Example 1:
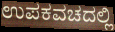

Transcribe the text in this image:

ಉಪಕವಚದಲ್ಲಿ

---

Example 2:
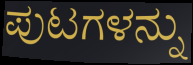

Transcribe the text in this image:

ಪುಟಗಳನ್ನು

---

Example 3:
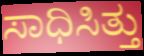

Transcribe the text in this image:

ಸಾಧಿಸಿತ್ತು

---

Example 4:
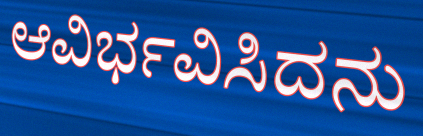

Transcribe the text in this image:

ಆವಿರ್ಭವಿಸಿದನು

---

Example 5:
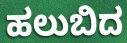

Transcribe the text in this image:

ಹಲುಬಿದ